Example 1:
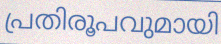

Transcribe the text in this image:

പ്രതിരൂപവുമായി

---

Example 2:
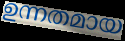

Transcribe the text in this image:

ഉന്നതമായ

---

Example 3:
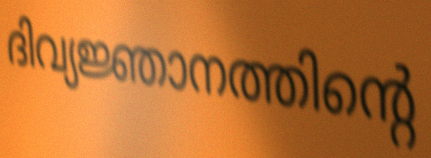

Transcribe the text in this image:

ദിവ്യജ്ഞാനത്തിന്റെ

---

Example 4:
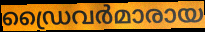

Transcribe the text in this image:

ഡ്രൈവർമാരായ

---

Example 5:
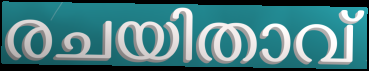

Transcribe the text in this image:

രചയിതാവ്